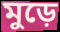
মুড়ে